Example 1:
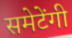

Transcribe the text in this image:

समेटेंगी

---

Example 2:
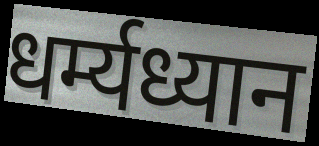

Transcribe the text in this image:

धर्म्यध्यान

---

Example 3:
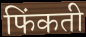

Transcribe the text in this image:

फिंकती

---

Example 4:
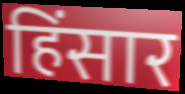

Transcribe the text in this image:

हिंसार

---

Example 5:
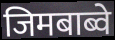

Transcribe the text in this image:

जिमबाब्वे